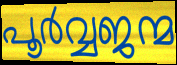
പൂർവ്വജന്മ